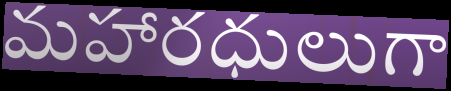
మహారధులుగా